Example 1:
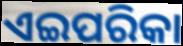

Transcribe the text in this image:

ଏଇପରିକା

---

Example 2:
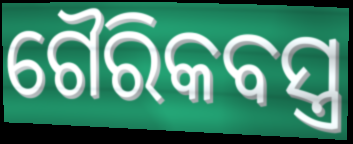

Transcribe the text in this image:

ଗୈରିକବସ୍ତ୍ର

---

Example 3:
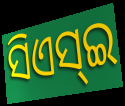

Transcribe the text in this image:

ସିଏସ୍ଇ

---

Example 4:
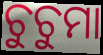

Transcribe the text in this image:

ଚୁଚୁମା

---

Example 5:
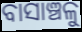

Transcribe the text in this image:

ବାସାଞ୍ଚଳୁ